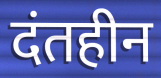
दंतहीन